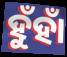
ହୁଁହାଁ